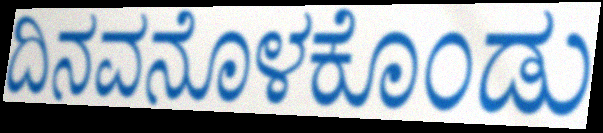
ದಿನವನೊಳಕೊಂಡು